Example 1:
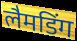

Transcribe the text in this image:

लैमडिंग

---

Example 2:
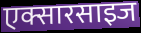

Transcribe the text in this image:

एक्सारसाइज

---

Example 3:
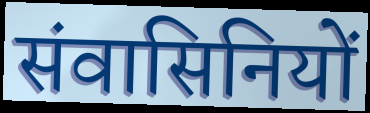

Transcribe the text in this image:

संवासिनियों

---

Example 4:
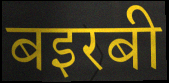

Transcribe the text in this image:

बइरबी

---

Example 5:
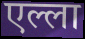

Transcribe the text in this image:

एल्ला